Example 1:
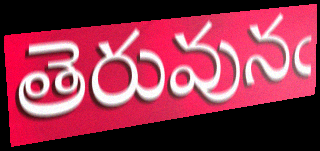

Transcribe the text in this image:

తెరువునఁ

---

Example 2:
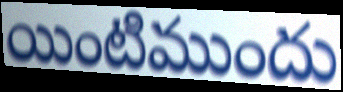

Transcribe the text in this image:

యింటిముందు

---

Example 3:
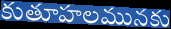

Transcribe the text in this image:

కుతూహలమునకు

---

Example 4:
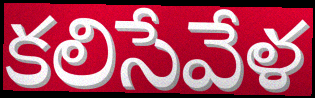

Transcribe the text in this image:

కలిసేవేళ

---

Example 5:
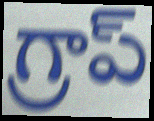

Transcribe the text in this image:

గ్రాప్